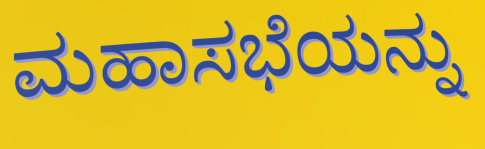
ಮಹಾಸಭೆಯನ್ನು